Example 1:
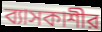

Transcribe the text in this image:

ব্যাসকাশীর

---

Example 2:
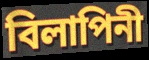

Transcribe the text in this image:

বিলাপিনী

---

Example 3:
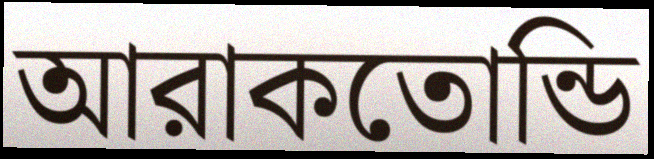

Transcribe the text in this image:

আরাকতোন্ডি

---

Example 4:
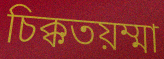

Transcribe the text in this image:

চিক্কতয়ম্মা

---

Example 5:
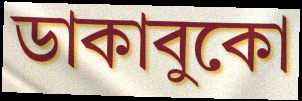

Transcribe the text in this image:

ডাকাবুকো